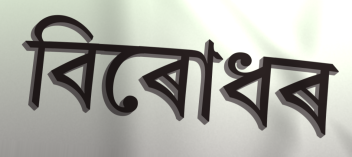
বিৰোধৰ